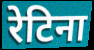
रेटिना